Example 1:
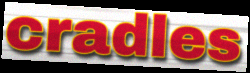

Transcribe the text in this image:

cradles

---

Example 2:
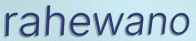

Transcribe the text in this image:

rahewano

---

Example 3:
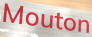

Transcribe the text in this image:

Mouton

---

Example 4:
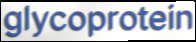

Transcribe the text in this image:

glycoprotein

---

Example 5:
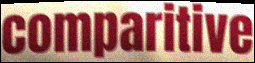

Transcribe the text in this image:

comparitive